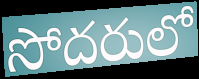
సోదరులో